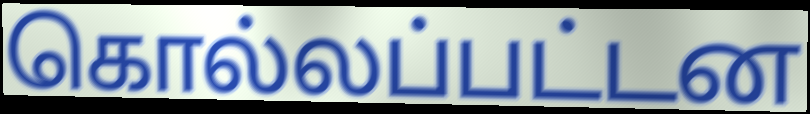
கொல்லப்பட்டன